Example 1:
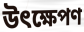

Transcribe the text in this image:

উৎক্ষেপণ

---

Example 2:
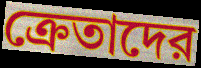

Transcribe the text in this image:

ক্রেতাদের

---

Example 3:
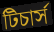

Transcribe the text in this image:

টিচার্স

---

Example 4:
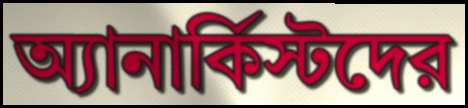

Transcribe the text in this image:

অ্যানার্কিস্টদের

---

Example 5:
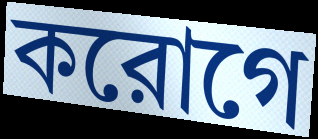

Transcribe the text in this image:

করোগে